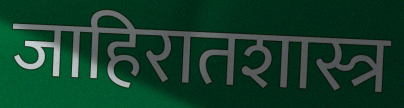
जाहिरातशास्त्र